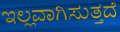
ಇಲ್ಲವಾಗಿಸುತ್ತದೆ